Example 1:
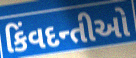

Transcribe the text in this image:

કિંવદન્તીઓ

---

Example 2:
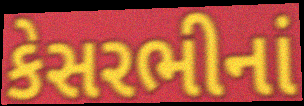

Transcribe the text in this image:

કેસરભીનાં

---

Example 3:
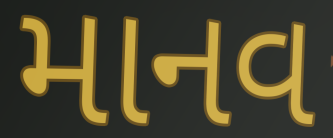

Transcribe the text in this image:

માનવ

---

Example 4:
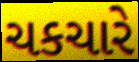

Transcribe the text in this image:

ચકચારે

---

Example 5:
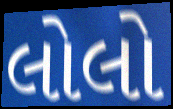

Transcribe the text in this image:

લોલો